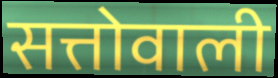
सत्तोवाली